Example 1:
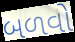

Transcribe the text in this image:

બળવો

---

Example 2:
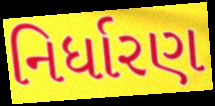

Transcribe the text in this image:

નિર્ધારણ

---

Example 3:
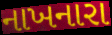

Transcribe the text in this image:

નાખનારા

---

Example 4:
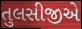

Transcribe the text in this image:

તુલસીજીએ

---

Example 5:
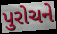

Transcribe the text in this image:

પુરોચને